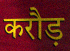
करौड़